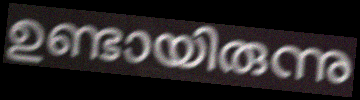
ഉണ്ടായിരുന്നു